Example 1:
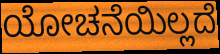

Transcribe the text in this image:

ಯೋಚನೆಯಿಲ್ಲದೆ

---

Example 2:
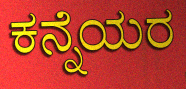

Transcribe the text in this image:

ಕನ್ನೆಯರ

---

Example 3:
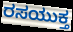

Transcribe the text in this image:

ರಸಯುಕ್ತ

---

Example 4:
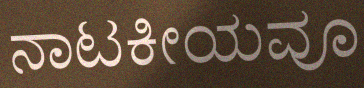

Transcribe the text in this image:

ನಾಟಕೀಯವೂ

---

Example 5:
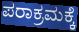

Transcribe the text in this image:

ಪರಾಕ್ರಮಕ್ಕೆ